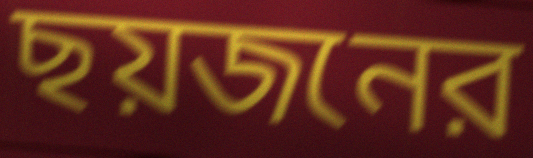
ছয়জনের